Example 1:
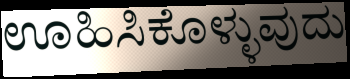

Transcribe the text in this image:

ಊಹಿಸಿಕೊಳ್ಳುವುದು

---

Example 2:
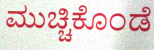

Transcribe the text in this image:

ಮುಚ್ಚಿಕೊಂಡೆ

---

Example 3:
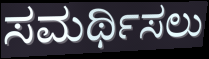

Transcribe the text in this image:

ಸಮರ್ಥಿಸಲು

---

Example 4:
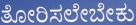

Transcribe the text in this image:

ತೋರಿಸಲೇಬೇಕು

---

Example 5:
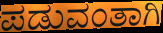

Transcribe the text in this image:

ಪಡುವಂತಾಗಿ